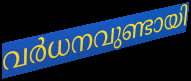
വർധനവുണ്ടായി